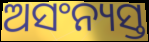
ଅସଂନ୍ୟସ୍ତ